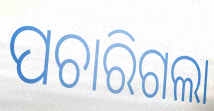
ପଚାରିଗଲା